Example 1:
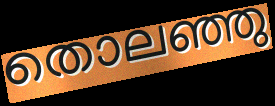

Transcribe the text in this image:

തൊലഞ്ഞു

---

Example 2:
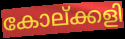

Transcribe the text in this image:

കോല്ക്കളി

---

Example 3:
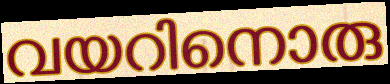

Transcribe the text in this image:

വയറിനൊരു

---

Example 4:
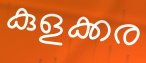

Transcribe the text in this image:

കുളക്കര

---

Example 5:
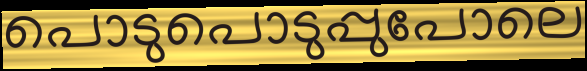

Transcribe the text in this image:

പൊടുപൊടുപ്പുപോലെ